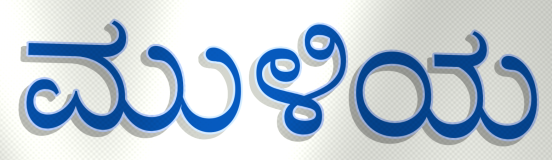
ಮುಳಿಯ